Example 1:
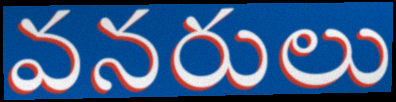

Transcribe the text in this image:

వనరులు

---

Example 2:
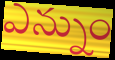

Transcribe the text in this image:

ఎన్నుం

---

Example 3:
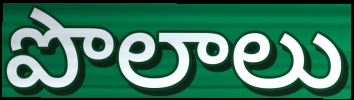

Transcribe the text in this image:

పొలాలు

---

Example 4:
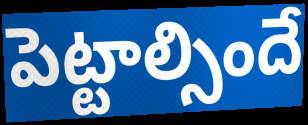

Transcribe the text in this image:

పెట్టాల్సిందే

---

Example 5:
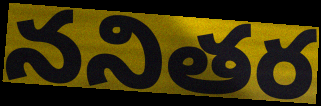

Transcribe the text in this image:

ననితర